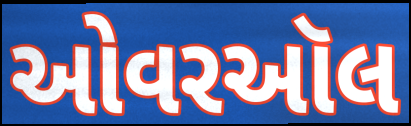
ઓવરઑલ